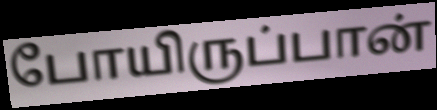
போயிருப்பான்